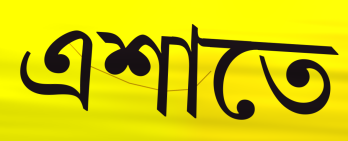
এশাতে